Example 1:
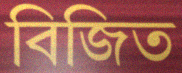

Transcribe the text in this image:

বিজিত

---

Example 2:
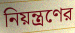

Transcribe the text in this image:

নিয়ন্ত্রণের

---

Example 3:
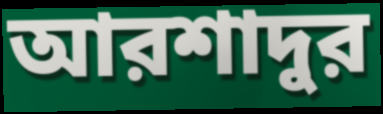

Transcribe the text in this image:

আরশাদুর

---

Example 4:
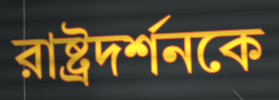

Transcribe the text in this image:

রাষ্ট্রদর্শনকে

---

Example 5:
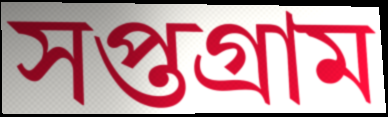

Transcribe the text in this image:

সপ্তগ্রাম